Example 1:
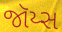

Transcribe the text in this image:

જૉય્સ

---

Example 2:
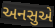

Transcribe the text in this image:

અનસુએ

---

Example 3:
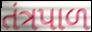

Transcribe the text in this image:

તંત્રપાળ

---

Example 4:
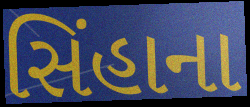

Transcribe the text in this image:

સિંહાના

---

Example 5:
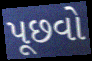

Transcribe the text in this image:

પૂછવો